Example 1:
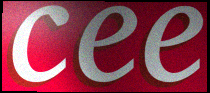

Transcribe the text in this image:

cee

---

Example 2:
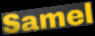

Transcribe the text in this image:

Samel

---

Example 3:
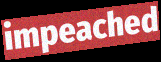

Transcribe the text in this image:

impeached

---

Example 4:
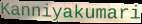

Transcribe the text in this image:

Kanniyakumari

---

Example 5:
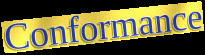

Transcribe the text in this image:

Conformance